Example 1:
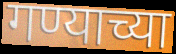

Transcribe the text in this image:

गण्याच्या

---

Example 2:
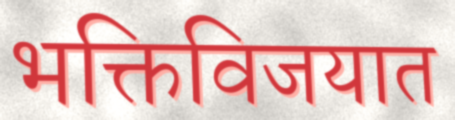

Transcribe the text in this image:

भक्तिविजयात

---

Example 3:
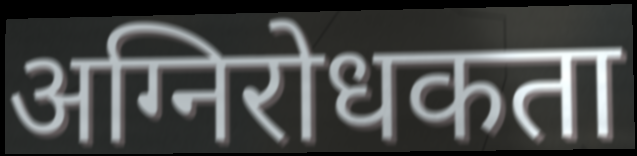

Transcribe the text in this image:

अग्निरोधकता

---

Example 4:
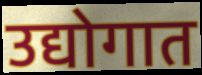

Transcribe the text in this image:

उद्योगात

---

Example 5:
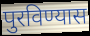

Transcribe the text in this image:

पुरविण्यास